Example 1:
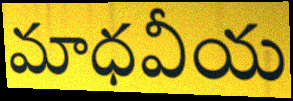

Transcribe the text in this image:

మాధవీయ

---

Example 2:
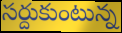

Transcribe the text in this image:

సర్దుకుంటున్న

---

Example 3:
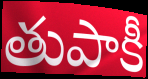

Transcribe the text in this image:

తుపాకీ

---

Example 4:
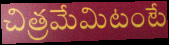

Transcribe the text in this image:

చిత్రమేమిటంటే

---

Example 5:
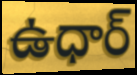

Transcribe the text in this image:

ఉధార్